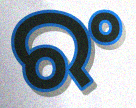
ରଂ